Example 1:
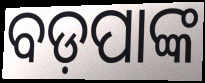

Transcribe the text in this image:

ବଡ଼ପାଙ୍କ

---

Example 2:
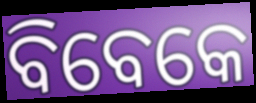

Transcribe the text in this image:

ବିବେକେ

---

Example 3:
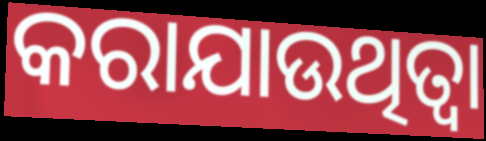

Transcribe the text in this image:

କରାଯାଉଥିତ୍ବା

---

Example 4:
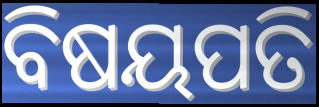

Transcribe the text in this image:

ବିଷୟପତି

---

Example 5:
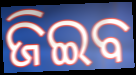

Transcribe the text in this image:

ଜିଇବ